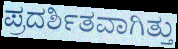
ಪ್ರದರ್ಶಿತವಾಗಿತ್ತು